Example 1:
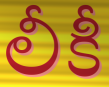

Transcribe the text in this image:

లీకీ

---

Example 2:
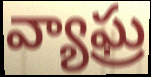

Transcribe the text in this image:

వ్యాఘ్ర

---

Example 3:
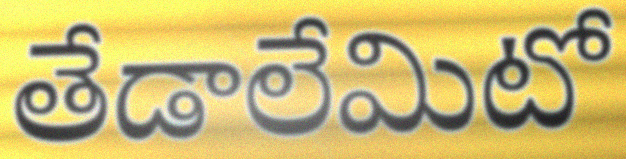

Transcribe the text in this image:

తేడాలేమిటో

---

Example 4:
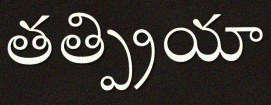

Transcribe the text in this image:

తత్ప్రియా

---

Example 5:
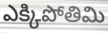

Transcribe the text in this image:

ఎక్కిపోతిమి